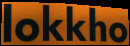
lokkho